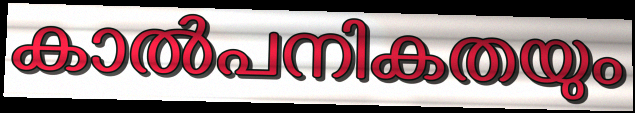
കാൽപനികതയും